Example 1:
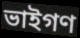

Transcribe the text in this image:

ভাইগণ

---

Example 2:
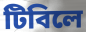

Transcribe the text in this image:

টিবিলে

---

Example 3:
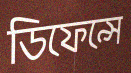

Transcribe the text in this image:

ডিফেন্সে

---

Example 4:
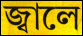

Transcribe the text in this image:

জ্বালে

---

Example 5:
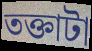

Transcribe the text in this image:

তক্তাটা